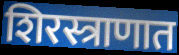
शिरस्त्राणात